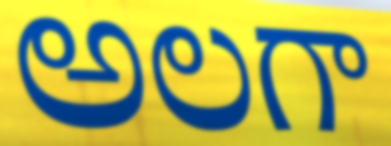
అలగా